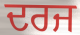
ਦਰਜ